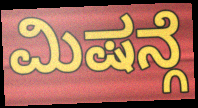
ಮಿಷನ್ಗೆ